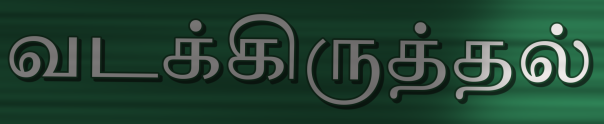
வடக்கிருத்தல்